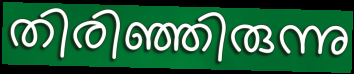
തിരിഞ്ഞിരുന്നു